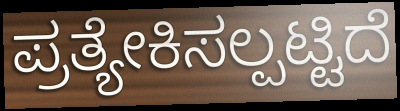
ಪ್ರತ್ಯೇಕಿಸಲ್ಪಟ್ಟಿದೆ